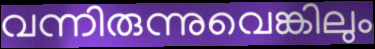
വന്നിരുന്നുവെങ്കിലും